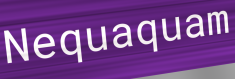
Nequaquam